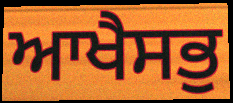
ਆਖੈਸਭੁ